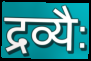
द्रव्यैः